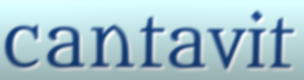
cantavit